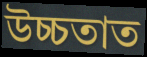
উচ্চতাত